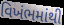
વિખંભમાંથી